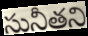
సునీతని